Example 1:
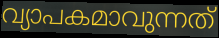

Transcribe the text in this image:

വ്യാപകമാവുന്നത്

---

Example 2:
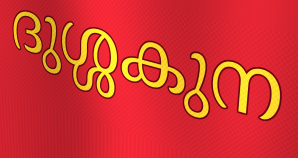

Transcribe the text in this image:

ദുശ്ശകുന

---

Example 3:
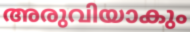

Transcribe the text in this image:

അരുവിയാകും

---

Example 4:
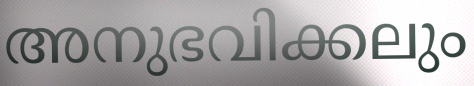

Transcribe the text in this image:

അനുഭവിക്കലും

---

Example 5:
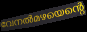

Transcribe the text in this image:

വേനൽമഴയെന്റെ